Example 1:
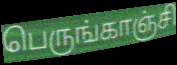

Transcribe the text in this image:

பெருங்காஞ்சி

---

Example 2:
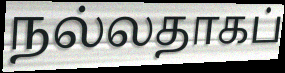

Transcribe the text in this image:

நல்லதாகப்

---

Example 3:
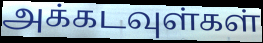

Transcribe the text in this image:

அக்கடவுள்கள்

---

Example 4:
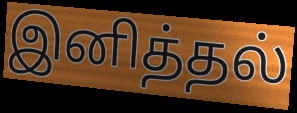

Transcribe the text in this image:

இனித்தல்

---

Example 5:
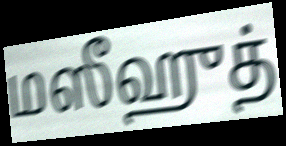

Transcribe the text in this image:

மஸீஹுத்